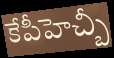
కేపీహెచ్బీ